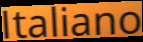
Italiano